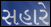
સહારે